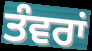
ਤੰਵਰਾਂ